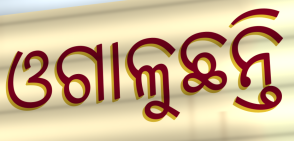
ଓଗାଳୁଛନ୍ତି